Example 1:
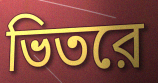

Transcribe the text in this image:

ভিতরে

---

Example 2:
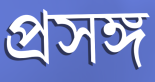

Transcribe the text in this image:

প্রসঙ্গ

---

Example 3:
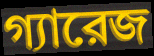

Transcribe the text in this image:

গ্যারেজ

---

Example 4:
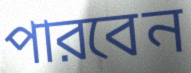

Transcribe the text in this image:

পারবেন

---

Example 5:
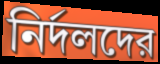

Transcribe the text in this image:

নির্দলদের